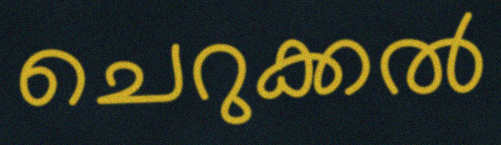
ചെറുക്കൽ